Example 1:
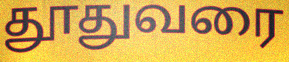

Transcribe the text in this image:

தூதுவரை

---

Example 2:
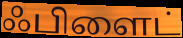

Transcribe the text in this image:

ஃபிளைட்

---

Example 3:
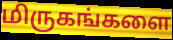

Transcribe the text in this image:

மிருகங்களை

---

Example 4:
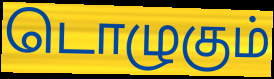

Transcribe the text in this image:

டொழுகும்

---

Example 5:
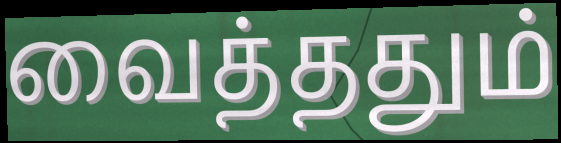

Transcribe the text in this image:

வைத்ததும்